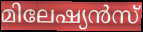
മിലേഷ്യൻസ്